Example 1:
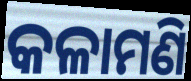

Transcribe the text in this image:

କଳାମଣି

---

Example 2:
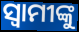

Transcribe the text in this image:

ସ୍ୱାମୀଙ୍କୁ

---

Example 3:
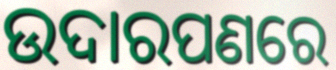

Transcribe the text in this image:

ଉଦାରପଣରେ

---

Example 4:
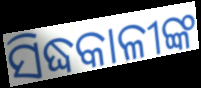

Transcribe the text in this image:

ସିଦ୍ଧକାଳୀଙ୍କ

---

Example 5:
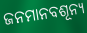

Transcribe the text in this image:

ଜନମାନବଶୂନ୍ୟ